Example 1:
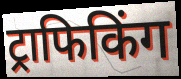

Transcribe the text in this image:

ट्राफिकिंग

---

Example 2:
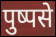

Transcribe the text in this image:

पुष्पसे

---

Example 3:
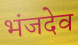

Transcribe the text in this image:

भंजदेव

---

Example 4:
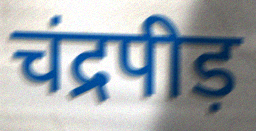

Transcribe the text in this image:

चंद्रपीड़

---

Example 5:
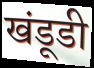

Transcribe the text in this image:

खंडूडी